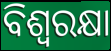
ବିଶ୍ୱରକ୍ଷା